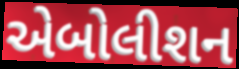
એબોલીશન